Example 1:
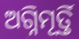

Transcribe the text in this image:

ଅଗ୍ନିମୂର୍ତ୍ତି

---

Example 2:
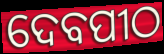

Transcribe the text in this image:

ଦେବପୀଠ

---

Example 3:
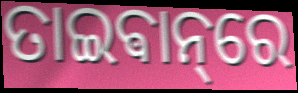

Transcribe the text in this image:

ତାଇଵାନ୍‌ରେ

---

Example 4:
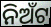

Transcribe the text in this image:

ନିଅଁଟ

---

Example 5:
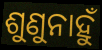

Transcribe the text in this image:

ଶୁଣୁନାହୁଁ